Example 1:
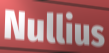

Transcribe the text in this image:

Nullius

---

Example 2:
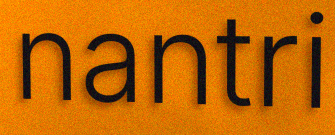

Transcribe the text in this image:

nantri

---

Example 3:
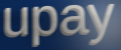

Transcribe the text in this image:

upay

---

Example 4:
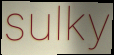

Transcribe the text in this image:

sulky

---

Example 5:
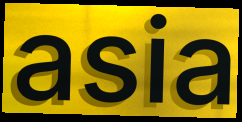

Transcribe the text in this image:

asia